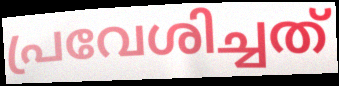
പ്രവേശിച്ചത്